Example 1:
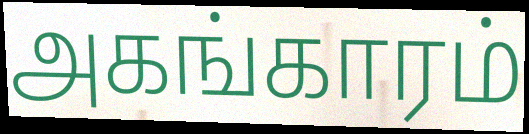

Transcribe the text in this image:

அகங்காரம்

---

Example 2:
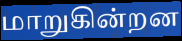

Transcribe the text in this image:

மாறுகின்றன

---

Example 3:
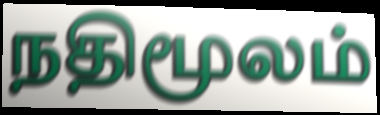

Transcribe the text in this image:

நதிமூலம்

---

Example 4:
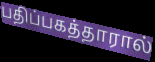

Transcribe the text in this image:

பதிப்பகத்தாரால்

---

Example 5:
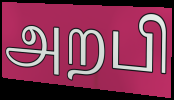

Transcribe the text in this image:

அறபி